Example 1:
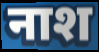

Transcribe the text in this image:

नाश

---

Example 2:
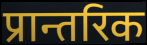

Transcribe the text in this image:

प्रान्तरिक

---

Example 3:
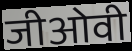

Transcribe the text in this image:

जीओवी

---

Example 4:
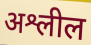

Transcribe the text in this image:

अश्लील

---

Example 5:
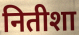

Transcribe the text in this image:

नितीशा